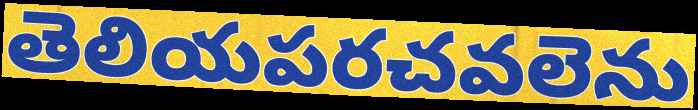
తెలియపరచవలెను